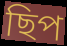
ছিপ